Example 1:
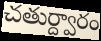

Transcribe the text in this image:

చతుర్ద్వారం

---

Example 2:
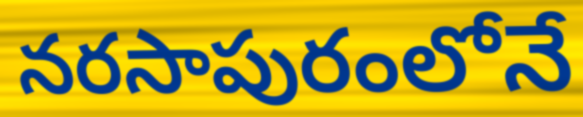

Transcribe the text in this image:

నరసాపురంలోనే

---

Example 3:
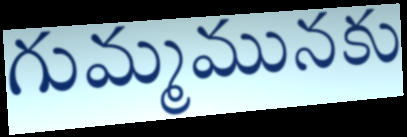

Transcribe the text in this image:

గుమ్మమునకు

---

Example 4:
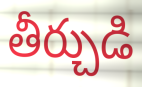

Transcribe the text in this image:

తీర్చుడి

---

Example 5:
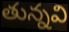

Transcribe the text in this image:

తున్నవి